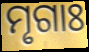
ମୃଗାଃ